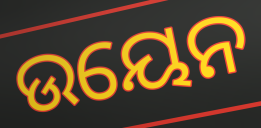
ଉୟେନ